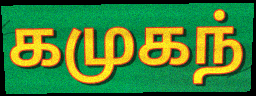
கமுகந்